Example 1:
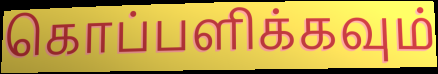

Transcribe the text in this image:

கொப்பளிக்கவும்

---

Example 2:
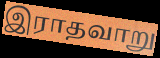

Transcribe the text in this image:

இராதவாறு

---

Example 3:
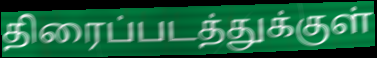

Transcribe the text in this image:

திரைப்படத்துக்குள்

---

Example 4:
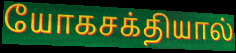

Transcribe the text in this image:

யோகசக்தியால்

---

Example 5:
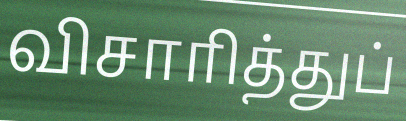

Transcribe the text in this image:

விசாரித்துப்